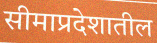
सीमाप्रदेशातील